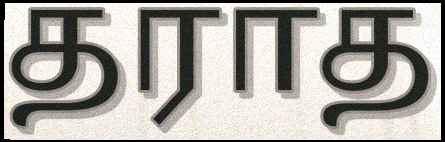
தராத